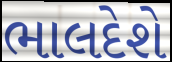
ભાલદેશે